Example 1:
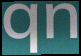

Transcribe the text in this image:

qn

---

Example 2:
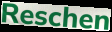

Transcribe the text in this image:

Reschen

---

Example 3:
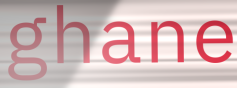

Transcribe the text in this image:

ghane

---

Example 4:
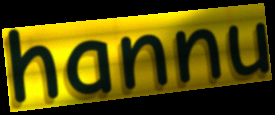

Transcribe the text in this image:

hannu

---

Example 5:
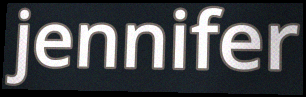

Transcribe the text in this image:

jennifer